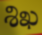
శిఖ